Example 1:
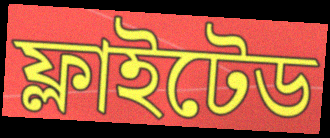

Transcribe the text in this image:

ফ্লাইটেড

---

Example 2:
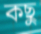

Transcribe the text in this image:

কছু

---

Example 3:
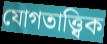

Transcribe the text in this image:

যোগতাত্ত্বিক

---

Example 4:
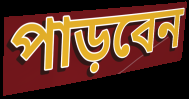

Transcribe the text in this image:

পাড়বেন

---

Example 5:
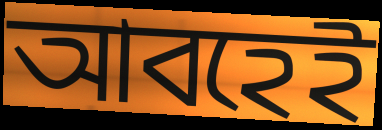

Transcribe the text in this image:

আবহেই